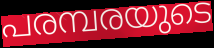
പരമ്പരയുടെ